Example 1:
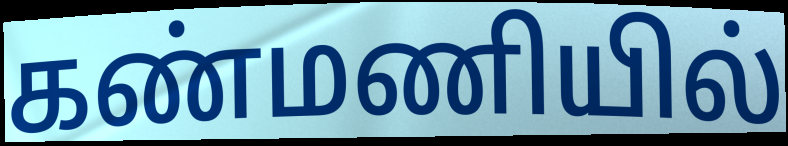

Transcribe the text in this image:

கண்மணியில்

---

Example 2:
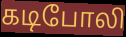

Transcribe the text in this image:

கடிபோலி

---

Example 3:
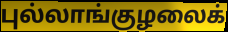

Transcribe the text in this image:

புல்லாங்குழலைக்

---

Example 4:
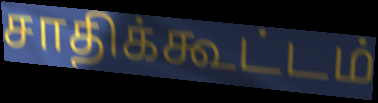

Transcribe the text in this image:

சாதிக்கூட்டம்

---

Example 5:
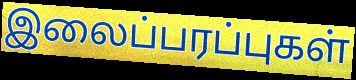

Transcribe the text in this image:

இலைப்பரப்புகள்